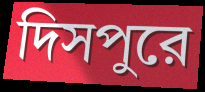
দিসপুরে